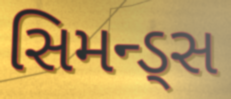
સિમન્ડ્સ